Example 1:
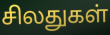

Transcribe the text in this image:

சிலதுகள்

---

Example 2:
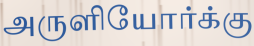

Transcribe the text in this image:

அருளியோர்க்கு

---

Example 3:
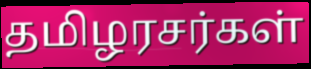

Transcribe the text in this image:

தமிழரசர்கள்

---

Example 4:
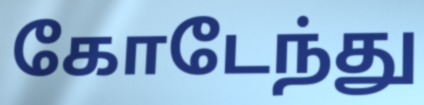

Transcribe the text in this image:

கோடேந்து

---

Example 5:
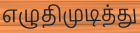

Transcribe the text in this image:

எழுதிமுடித்து